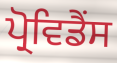
ਪ੍ਰੋਵਿਡੈਂਸ